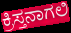
ಕ್ರಿಸ್ತನಾಗಲಿ